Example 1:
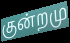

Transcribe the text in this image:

குன்றமு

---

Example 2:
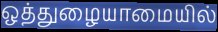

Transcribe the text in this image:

ஒத்துழையாமையில்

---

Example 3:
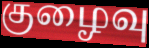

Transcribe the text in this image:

குழைவு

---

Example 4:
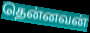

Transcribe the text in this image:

தென்னவன்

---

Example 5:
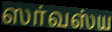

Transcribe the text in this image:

ஸர்வஸ்ய